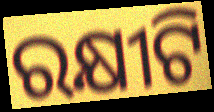
ରକ୍ଷୀଟି